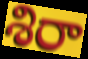
శిరా